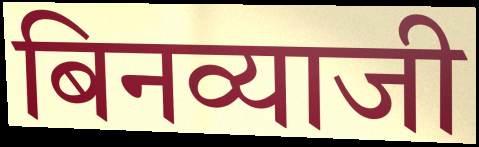
बिनव्याजी